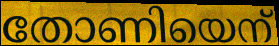
തോണിയെന്